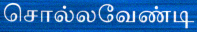
சொல்லவேண்டி